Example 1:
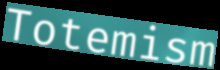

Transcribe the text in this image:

Totemism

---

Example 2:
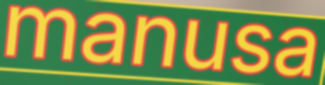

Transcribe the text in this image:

manusa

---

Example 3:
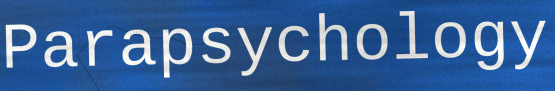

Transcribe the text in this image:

Parapsychology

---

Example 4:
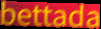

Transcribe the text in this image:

bettada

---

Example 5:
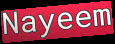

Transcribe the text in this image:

Nayeem